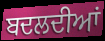
ਬਦਲਦੀਆਂ